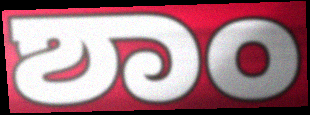
ಶಾಂ